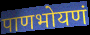
पाणभोयणं